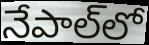
నేపాల్‌లో